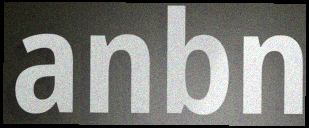
anbn